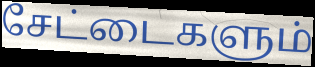
சேட்டைகளும்